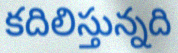
కదిలిస్తున్నది